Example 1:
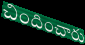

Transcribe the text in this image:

చిందించారు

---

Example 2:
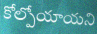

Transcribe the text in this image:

కోల్పోయాయని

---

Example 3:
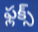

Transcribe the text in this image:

ఫ్లక్స్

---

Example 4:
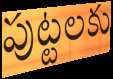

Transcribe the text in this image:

పుట్టలకు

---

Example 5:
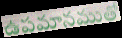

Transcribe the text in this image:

ఉపమానముతో